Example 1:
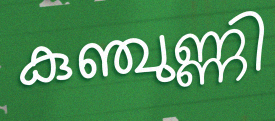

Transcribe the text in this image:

കുഞ്ചുണ്ണി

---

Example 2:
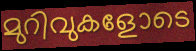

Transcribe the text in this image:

മുറിവുകളോടെ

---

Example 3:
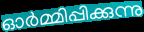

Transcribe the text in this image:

ഓർമ്മിപ്പിക്കുന്നു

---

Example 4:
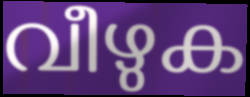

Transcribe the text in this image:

വീഴുക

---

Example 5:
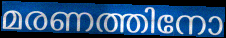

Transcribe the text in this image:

മരണത്തിനോ